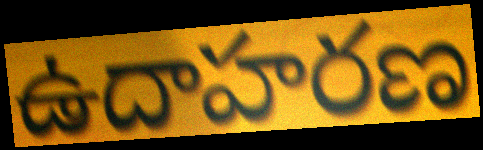
ఉదాహరణ